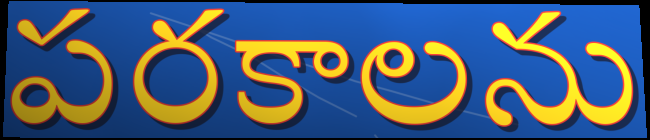
పరకాలను